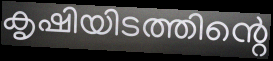
കൃഷിയിടത്തിന്റെ